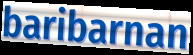
baribarnan